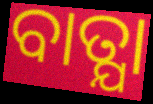
ବାତ୍ଯା